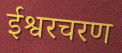
ईश्वरचरण